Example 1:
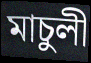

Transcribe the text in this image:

মাচুলী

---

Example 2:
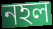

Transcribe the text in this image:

নহল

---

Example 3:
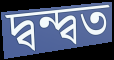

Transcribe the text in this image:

দ্বন্দ্বত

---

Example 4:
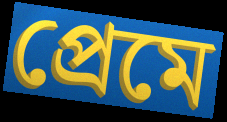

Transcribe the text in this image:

প্ৰেমে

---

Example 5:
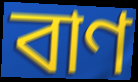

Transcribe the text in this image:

বাণ